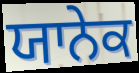
ਯਾਨੇਕ